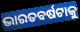
ଭାରତବର୍ଷଟାକୁ